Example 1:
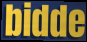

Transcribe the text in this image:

bidde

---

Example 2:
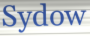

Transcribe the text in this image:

Sydow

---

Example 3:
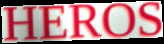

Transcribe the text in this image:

HEROS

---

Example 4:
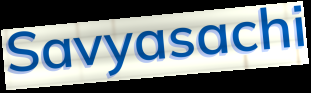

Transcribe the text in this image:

Savyasachi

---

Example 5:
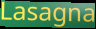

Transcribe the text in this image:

Lasagna